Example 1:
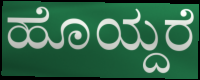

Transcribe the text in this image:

ಹೊಯ್ದರೆ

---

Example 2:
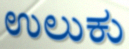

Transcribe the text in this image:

ಉಲುಕು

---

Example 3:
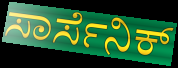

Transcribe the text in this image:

ಸಾರ್ಸೆನಿಕ್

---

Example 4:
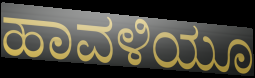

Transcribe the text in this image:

ಹಾವಳಿಯೂ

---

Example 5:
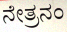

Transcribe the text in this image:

ನೇತ್ರನಂ